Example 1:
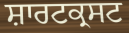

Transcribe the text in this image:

ਸ਼ਾਰਟਕ੍ਰਸਟ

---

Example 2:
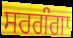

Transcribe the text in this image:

ਸਰਗੰਗਾ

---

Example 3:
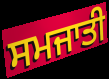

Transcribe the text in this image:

ਸਮਜਾਤੀ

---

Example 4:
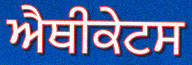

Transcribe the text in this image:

ਐਥੀਕੇਟਸ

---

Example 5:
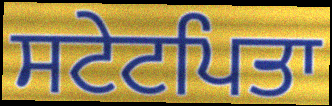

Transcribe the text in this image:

ਸਟੇਟਪਿਤਾ